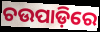
ଚଉପାଡ଼ିରେ